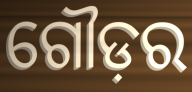
ଗୌଡ଼ର